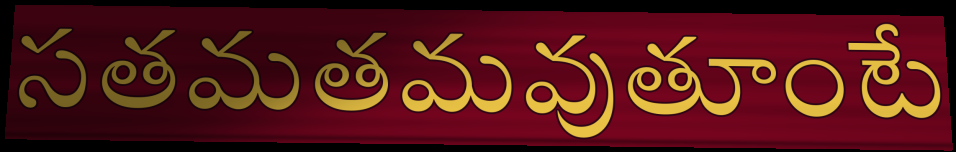
సతమతమవుతూంటే